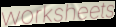
worksheets